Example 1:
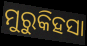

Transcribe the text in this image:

ମୁରୁକିହସା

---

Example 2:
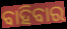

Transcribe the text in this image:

ବାହିବାର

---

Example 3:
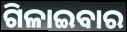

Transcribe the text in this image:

ଗିଳାଇବାର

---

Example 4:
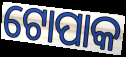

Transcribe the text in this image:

ଟୋପାକ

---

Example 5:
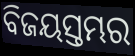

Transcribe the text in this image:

ବିଜୟସ୍ତମ୍ଭର